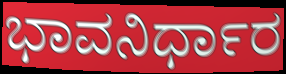
ಭಾವನಿರ್ಧಾರ